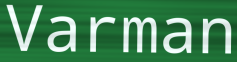
Varman